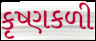
કૃષ્ણકળી